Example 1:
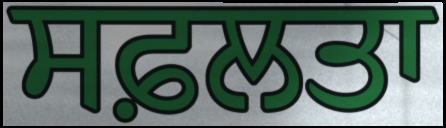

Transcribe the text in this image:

ਸਫ਼ਲਤਾ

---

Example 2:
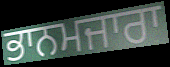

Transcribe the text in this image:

ਭਾਨਮਜਾਰਾ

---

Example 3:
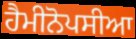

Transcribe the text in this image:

ਹੈਮੀਨੋਪਸੀਆ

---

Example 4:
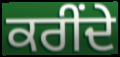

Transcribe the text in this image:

ਕਰੀਂਦੇ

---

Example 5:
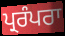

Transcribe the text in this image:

ਪ੍ਰਰੰਪਰਾ